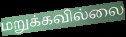
மறுக்கவில்லை